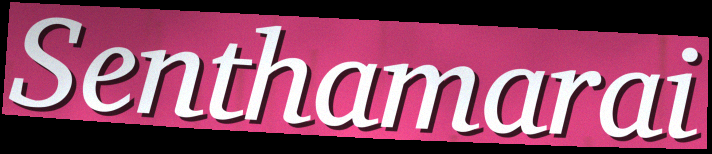
Senthamarai